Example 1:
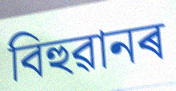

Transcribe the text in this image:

বিহুৱানৰ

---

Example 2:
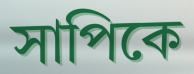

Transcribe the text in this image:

সাপিকে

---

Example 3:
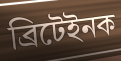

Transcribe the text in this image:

ব্ৰিটেইনক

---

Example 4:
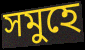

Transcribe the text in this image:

সমুহে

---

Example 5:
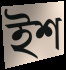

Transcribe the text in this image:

ইশ